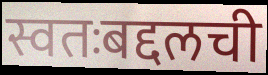
स्वतःबद्दलची